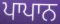
ਪਾਪਾਨ